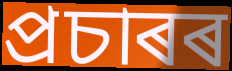
প্ৰচাৰৰ